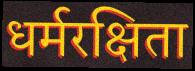
धर्मरक्षिता